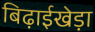
बिढ़ाईखेड़ा